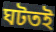
ঘটতই